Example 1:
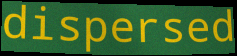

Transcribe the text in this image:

dispersed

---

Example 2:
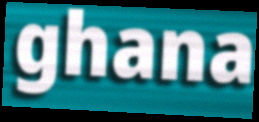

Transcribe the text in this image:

ghana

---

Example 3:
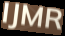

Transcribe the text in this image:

IJMR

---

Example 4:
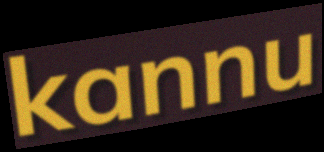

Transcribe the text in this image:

kannu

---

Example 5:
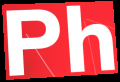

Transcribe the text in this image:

Ph